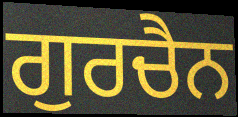
ਗੁਰਚੈਨ